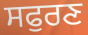
ਸਫੁਰਣ